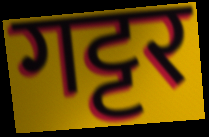
गट्टर